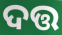
ଦତ୍ତ